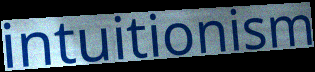
intuitionism